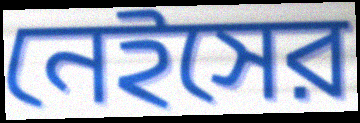
নেইসের